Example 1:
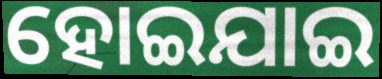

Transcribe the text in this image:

ହୋଇଯାଇ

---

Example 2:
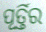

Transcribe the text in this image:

ପୂର୍ତ୍ତିର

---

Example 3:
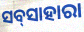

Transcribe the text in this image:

ସବ୍‌ସାହାରା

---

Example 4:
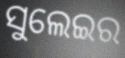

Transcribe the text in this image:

ସୁଲେଇର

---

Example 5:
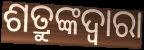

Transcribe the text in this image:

ଶତ୍ରୁଙ୍କଦ୍ୱାରା